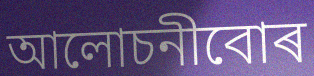
আলোচনীবোৰ